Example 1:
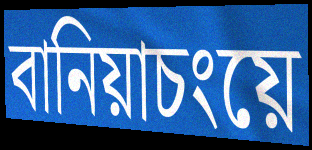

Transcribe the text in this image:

বানিয়াচংয়ে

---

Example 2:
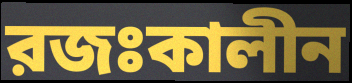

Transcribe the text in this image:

রজঃকালীন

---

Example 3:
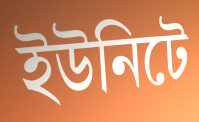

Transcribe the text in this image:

ইউনিটে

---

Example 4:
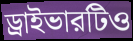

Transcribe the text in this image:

ড্রাইভারটিও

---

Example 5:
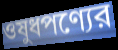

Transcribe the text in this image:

ওষুধপণ্যের